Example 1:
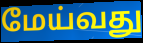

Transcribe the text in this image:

மேய்வது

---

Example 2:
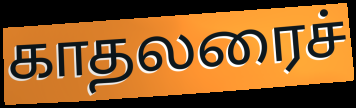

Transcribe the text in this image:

காதலரைச்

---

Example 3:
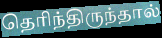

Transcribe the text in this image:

தெரிந்திருந்தால்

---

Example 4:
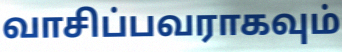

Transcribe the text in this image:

வாசிப்பவராகவும்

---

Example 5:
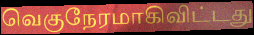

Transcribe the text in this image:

வெகுநேரமாகிவிட்டது